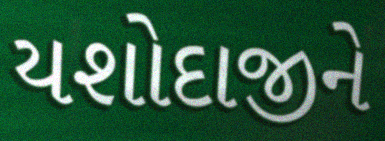
યશોદાજીને